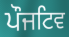
ਪੌਜਟਿਵ